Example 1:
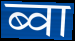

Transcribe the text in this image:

ब्वा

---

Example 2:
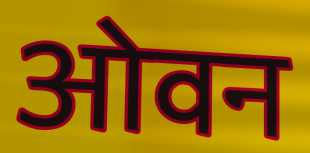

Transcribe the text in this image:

ओवन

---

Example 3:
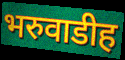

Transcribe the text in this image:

भरुवाडीह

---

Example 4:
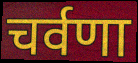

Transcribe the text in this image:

चर्वणा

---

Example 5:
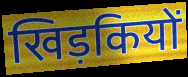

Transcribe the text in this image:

खिड़कियों